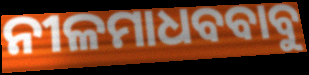
ନୀଳମାଧବବାବୁ